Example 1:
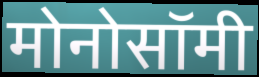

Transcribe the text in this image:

मोनोसॉमी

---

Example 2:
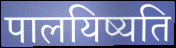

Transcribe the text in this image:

पालयिष्यति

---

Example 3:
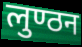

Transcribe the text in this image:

लुण्ठन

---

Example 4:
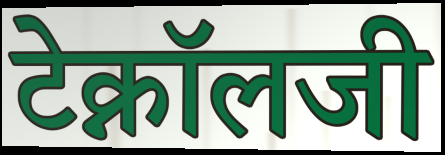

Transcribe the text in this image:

टेक्नॉलजी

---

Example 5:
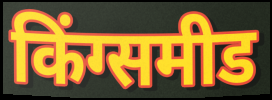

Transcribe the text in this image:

किंग्समीड